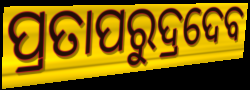
ପ୍ରତାପରୁଦ୍ରଦେବ